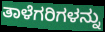
ತಾಳೆಗರಿಗಳನ್ನು